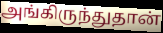
அங்கிருந்துதான்